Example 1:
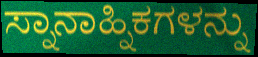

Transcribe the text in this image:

ಸ್ನಾನಾಹ್ನಿಕಗಳನ್ನು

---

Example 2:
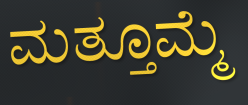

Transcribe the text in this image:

ಮತ್ತೂಮ್ಮೆ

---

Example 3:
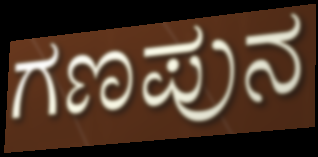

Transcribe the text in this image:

ಗಣಪುನ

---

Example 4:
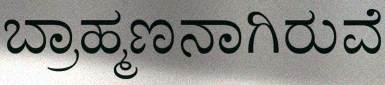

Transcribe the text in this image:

ಬ್ರಾಹ್ಮಣನಾಗಿರುವೆ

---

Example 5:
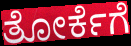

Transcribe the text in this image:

ತೋರ್ಕೆಗೆ